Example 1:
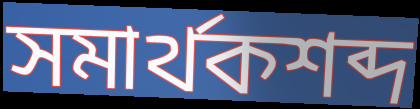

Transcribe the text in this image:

সমার্থকশব্দ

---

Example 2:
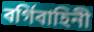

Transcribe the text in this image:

বর্গিবাহিনী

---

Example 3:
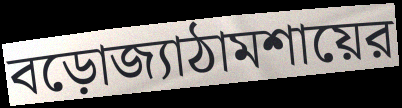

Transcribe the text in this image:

বড়োজ্যাঠামশায়ের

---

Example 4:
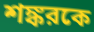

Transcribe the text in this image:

শঙ্করকে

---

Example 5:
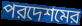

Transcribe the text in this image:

পরদেশমের